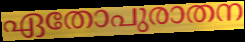
ഏതോപുരാതന